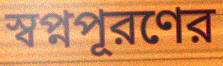
স্বপ্নপূরণের